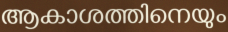
ആകാശത്തിനെയും